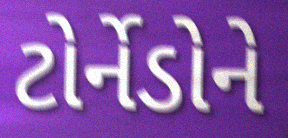
ટોર્નેડોને